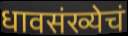
धावसंख्येचं